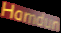
Hamdun